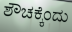
ಶೌಚಕ್ಕೆಂದು